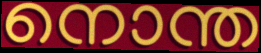
നൊന്ത